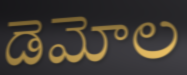
డెమోల